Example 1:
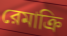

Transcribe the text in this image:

রেমাক্রি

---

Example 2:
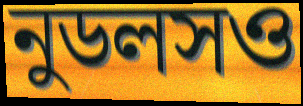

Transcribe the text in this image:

নুডলসও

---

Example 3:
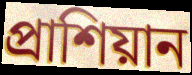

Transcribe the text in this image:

প্রাশিয়ান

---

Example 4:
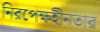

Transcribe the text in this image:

নিরপেক্ষহীনতার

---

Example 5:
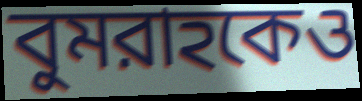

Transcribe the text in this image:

বুমরাহকেও